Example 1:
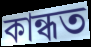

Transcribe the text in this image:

কান্ধত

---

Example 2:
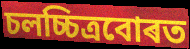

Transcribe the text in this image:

চলচ্চিত্ৰবোৰত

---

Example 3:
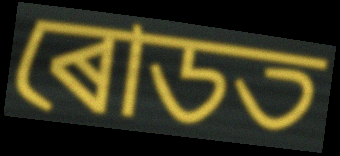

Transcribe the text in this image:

ৰোডত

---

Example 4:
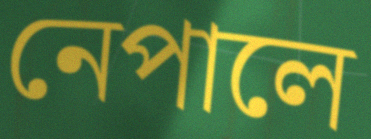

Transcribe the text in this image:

নেপালে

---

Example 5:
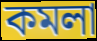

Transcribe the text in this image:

কমলা